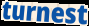
turnest